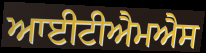
ਆਈਟੀਐਮਐਸ